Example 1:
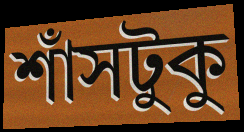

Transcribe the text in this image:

শাঁসটুকু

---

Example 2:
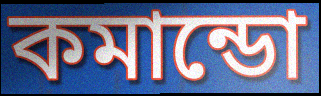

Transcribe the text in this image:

কমান্ডো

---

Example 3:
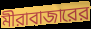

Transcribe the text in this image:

মীরাবাজারের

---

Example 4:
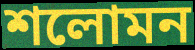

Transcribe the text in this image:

শলোমন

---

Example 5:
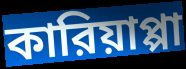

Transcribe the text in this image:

কারিয়াপ্পা